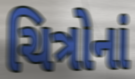
ચિત્રોનાં